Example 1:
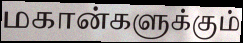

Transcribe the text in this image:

மகான்களுக்கும்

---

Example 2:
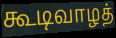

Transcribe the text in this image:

கூடிவாழத்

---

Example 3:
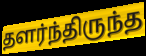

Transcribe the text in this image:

தளர்ந்திருந்த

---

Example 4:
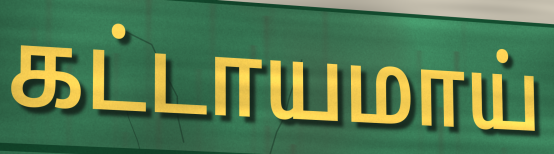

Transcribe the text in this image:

கட்டாயமாய்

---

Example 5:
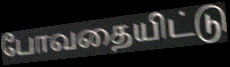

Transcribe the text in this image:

போவதையிட்டு